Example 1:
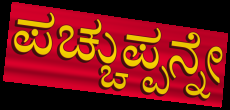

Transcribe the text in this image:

ಪಚ್ಚುಪ್ಪನ್ನೇ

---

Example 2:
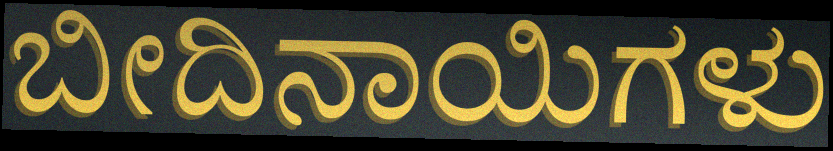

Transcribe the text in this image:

ಬೀದಿನಾಯಿಗಳು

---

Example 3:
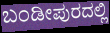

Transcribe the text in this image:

ಬಂಡೀಪುರದಲ್ಲಿ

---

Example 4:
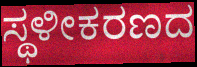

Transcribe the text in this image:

ಸ್ಥಳೀಕರಣದ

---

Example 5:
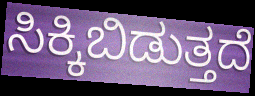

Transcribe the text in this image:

ಸಿಕ್ಕಿಬಿಡುತ್ತದೆ